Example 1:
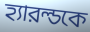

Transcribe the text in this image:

হ্যারল্ডকে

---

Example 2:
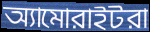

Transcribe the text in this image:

অ্যামোরাইটরা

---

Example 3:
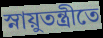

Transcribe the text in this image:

স্নায়ুতন্ত্রীতে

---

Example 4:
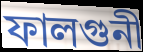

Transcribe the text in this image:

ফালগুনী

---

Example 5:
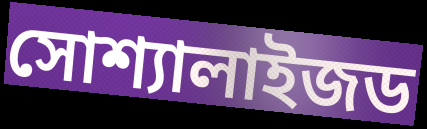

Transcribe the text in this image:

সোশ্যালাইজড